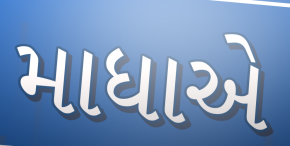
માધાએ